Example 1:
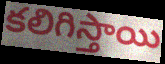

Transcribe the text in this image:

కలిగిస్తాయి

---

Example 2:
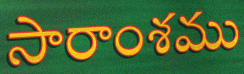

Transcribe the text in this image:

సారాంశము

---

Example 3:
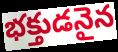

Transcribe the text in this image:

భక్తుడనైన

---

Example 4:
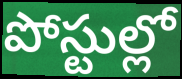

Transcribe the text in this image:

పోస్టుల్లో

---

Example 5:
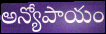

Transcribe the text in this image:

అన్యోపాయం